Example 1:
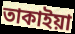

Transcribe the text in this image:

তাকাইয়া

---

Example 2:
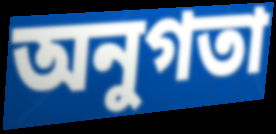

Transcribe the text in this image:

অনুগতা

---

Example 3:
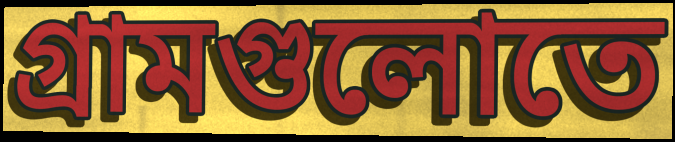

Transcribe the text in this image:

গ্রামগুলোতে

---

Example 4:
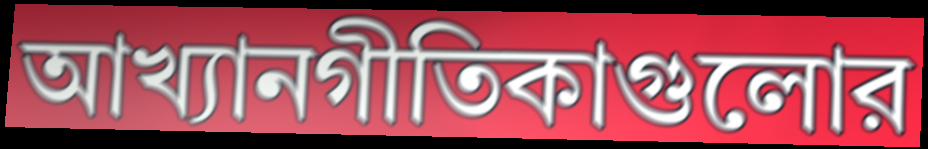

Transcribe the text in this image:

আখ্যানগীতিকাগুলোর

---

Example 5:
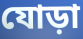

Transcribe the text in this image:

যোড়া